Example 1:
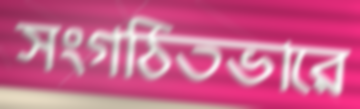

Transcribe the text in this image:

সংগঠিতভাৱে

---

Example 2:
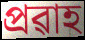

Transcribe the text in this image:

প্ৰৱাহ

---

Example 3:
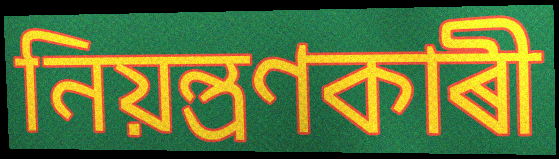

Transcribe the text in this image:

নিয়ন্ত্ৰণকাৰী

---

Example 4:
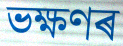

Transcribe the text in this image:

ভক্ষণৰ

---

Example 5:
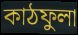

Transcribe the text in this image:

কাঠফুলা